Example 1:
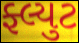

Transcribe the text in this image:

ફ્લ્યુટ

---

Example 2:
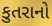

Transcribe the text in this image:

કુતરાનો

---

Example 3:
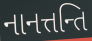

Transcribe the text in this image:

નાનત્તન્તિ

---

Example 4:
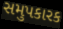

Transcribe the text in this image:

સમુપકારક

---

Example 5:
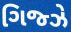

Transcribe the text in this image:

ગિજ્ઝે